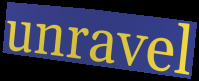
unravel